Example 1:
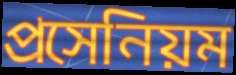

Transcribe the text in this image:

প্রসেনিয়ম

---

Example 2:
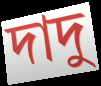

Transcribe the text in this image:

দাদু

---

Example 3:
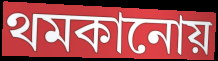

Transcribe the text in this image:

থমকানোয়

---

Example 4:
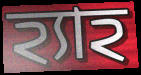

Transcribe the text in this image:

হ্যাহ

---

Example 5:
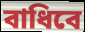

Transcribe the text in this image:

বাধিবে